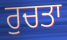
ਰੁਚਤਾ